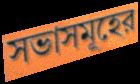
সভাসমূহের